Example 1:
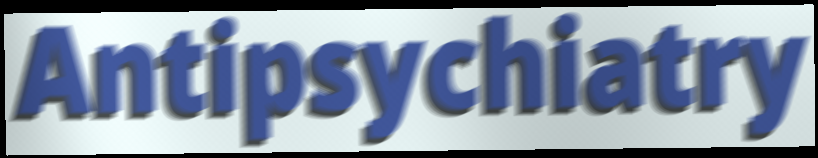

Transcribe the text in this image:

Antipsychiatry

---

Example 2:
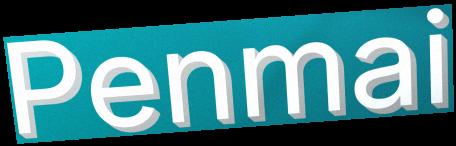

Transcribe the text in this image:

Penmai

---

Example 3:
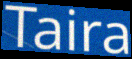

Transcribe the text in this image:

Taira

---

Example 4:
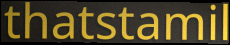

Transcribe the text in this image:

thatstamil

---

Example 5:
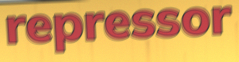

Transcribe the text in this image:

repressor